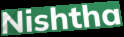
Nishtha